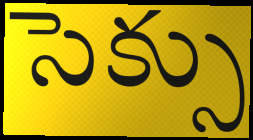
సెక్సు